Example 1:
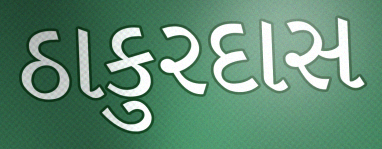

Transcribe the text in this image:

ઠાકુરદાસ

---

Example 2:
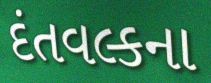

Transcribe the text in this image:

દંતવલ્કના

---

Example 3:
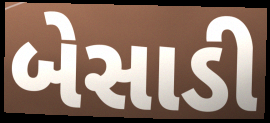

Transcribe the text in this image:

બેસાડી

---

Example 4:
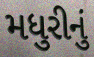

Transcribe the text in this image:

મધુરીનું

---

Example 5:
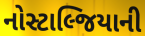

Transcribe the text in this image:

નોસ્ટાલ્જિયાની